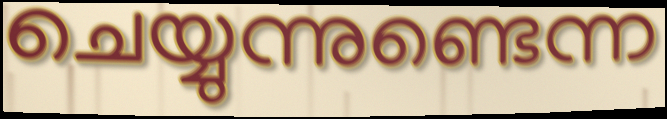
ചെയ്യുന്നുണ്ടെന്ന